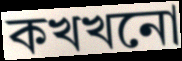
কখখনো